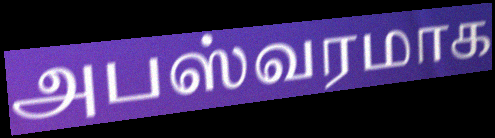
அபஸ்வரமாக